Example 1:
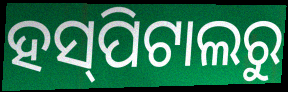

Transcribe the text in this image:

ହସ୍‌ପିଟାଲରୁ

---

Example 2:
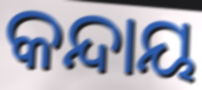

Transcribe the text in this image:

କନ୍ଦାୟ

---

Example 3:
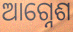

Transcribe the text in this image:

ଆଗ୍ନେଶ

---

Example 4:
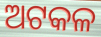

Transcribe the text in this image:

ଅଟକଳ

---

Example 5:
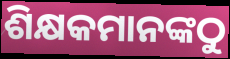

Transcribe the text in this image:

ଶିକ୍ଷକମାନଙ୍କଠୁ